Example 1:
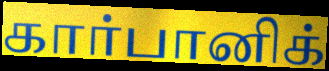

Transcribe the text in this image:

கார்பானிக்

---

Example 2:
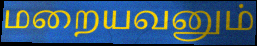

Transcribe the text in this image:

மறையவனும்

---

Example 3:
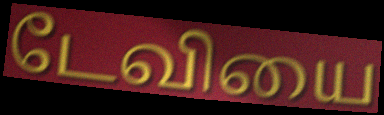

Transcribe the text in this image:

டேவியை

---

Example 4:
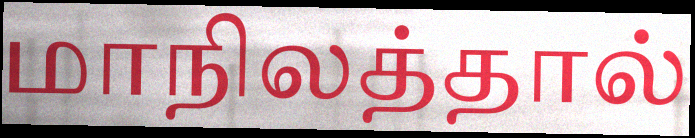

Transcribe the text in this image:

மாநிலத்தால்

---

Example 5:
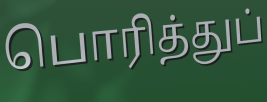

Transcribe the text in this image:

பொரித்துப்